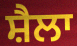
ਸ਼ੈਲਾ